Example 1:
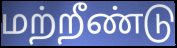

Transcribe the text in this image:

மற்றீண்டு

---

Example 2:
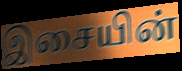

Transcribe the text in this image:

இசையின்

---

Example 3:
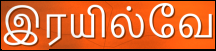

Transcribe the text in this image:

இரயில்வே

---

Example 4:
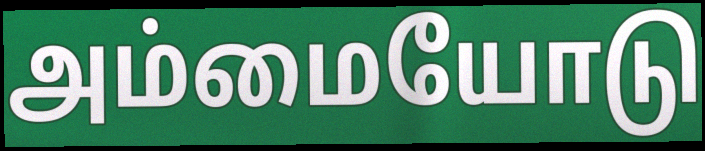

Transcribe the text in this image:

அம்மையோடு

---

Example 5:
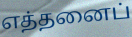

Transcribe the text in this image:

எத்தனைப்